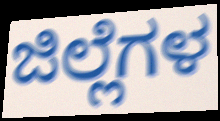
ಜಿಲ್ಲೆಗಳ